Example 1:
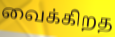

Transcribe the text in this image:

வைக்கிறத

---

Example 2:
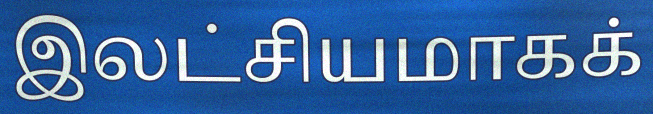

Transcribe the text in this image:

இலட்சியமாகக்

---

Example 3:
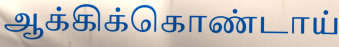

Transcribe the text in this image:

ஆக்கிக்கொண்டாய்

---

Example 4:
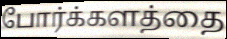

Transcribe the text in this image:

போர்க்களத்தை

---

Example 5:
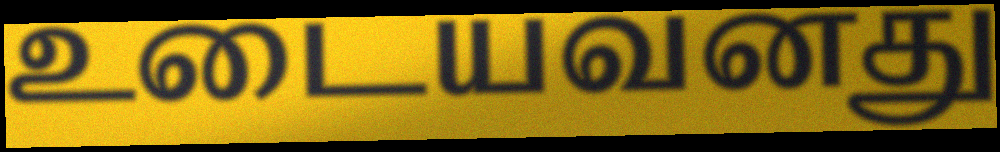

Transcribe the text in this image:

உடையவனது